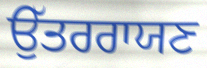
ਉੱਤਰਰਾਯਣ